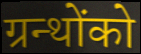
ग्रन्थोंको